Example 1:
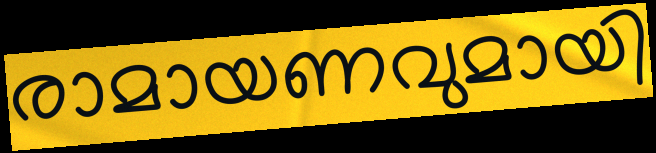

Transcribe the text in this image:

രാമായണവുമായി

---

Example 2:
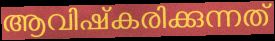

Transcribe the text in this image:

ആവിഷ്‌കരിക്കുന്നത്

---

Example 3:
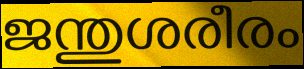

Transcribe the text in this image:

ജന്തുശരീരം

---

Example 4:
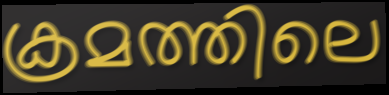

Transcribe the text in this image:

ക്രമത്തിലെ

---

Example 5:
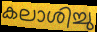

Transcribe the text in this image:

കലാശിച്ചു